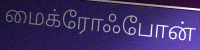
மைக்ரோஃபோன்